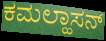
ಕಮಲ್ಹಾಸನ್